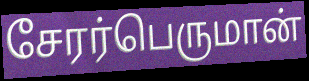
சேரர்பெருமான்